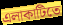
এলাকাটিতে